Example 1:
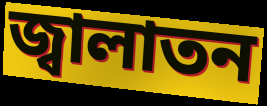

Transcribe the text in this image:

জ্বালাতন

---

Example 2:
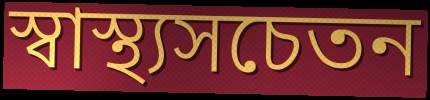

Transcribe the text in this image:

স্বাস্থ্যসচেতন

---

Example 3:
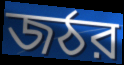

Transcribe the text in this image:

জঠর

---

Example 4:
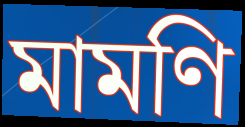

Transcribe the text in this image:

মামণি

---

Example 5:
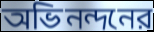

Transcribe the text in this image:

অভিনন্দনের